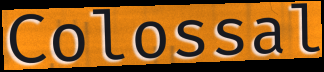
Colossal